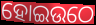
ହୋଇଉଠେ